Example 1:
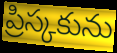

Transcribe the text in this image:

ప్రిస్కకును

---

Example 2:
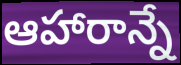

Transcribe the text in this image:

ఆహారాన్నే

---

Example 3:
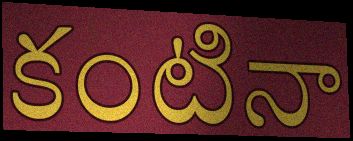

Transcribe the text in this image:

కంటినా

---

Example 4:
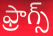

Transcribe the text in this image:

ఫ్రాగ్స్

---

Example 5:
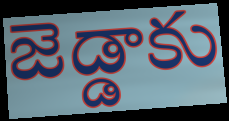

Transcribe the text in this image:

జెడ్డాకు